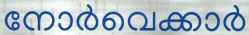
നോർവെക്കാർ